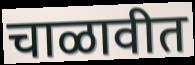
चाळावीत